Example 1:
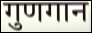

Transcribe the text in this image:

गुणगान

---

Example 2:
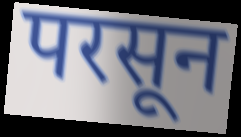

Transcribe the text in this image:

परसून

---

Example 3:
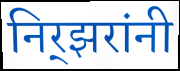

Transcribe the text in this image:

निर्झरांनी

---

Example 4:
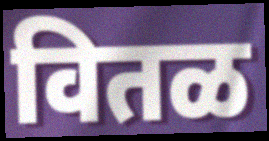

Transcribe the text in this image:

वितळ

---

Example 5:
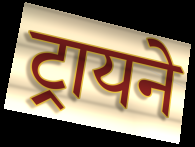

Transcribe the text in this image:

ट्रायने